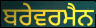
ਬਰੇਵਰਮੈਨ